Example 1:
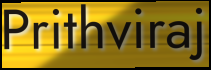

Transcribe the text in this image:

Prithviraj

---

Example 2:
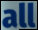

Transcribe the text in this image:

all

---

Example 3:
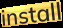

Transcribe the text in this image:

install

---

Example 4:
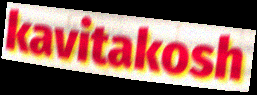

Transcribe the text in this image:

kavitakosh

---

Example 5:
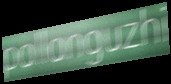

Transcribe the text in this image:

pallanguzhi